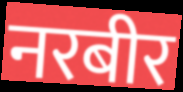
नरबीर